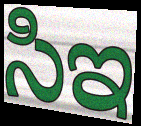
సిఇ